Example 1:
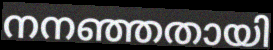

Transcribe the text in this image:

നനഞ്ഞതായി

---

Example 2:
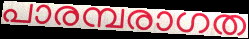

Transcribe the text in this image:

പാരമ്പരാഗത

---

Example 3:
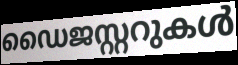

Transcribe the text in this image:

ഡൈജസ്റ്ററുകൾ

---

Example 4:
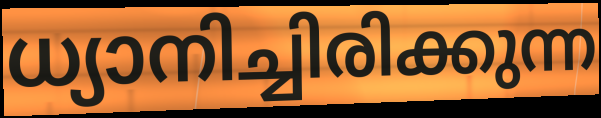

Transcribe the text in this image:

ധ്യാനിച്ചിരിക്കുന്ന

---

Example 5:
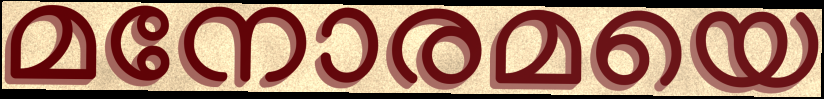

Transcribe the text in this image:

മനോരമയെ